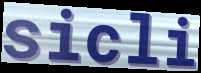
sicli